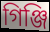
গিঞ্জি